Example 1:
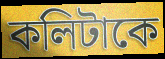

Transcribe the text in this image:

কলিটাকে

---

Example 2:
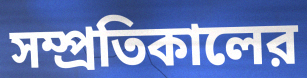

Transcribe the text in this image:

সম্প্রতিকালের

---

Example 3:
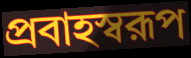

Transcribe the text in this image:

প্রবাহস্বরূপ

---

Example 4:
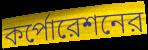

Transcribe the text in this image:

কর্পোরেশনের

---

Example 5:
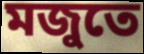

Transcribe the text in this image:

মজুতে